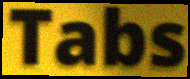
Tabs